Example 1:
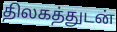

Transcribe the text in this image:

திலகத்துடன்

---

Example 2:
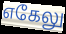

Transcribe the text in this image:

எகேலு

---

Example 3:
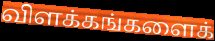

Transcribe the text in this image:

விளக்கங்களைக்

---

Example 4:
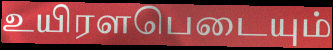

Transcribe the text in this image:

உயிரளபெடையும்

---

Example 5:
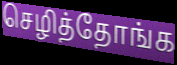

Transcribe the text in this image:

செழித்தோங்க